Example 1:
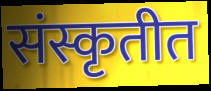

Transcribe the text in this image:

संस्कृतीत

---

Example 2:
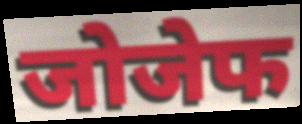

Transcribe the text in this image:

जोजेफ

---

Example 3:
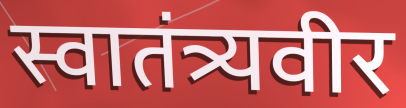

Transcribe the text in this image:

स्वातंत्र्यवीर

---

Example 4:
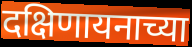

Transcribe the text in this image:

दक्षिणायनाच्या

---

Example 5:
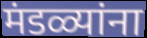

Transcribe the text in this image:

मंडळ्यांना